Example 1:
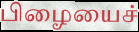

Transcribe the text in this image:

பிழையைச்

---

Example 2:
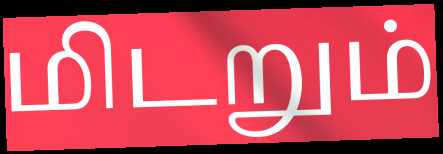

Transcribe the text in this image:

மிடறும்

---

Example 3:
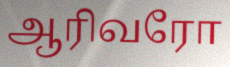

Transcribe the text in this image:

ஆரிவரோ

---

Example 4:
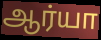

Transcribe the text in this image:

ஆர்யா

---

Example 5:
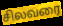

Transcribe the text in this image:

சிலவரை